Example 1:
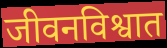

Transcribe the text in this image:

जीवनविश्वात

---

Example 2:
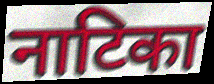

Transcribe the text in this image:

नाटिका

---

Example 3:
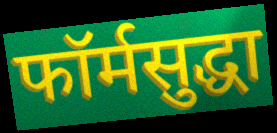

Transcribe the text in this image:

फॉर्मसुद्धा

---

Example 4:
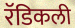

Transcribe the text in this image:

रॅडिकली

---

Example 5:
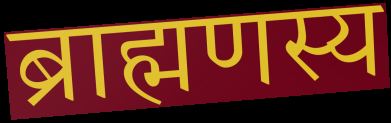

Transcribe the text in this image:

ब्राह्मणस्य